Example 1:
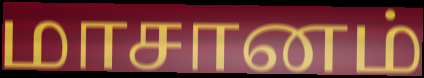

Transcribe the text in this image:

மாசானம்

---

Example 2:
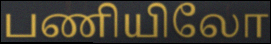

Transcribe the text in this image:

பணியிலோ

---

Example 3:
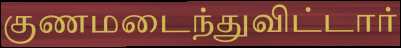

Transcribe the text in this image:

குணமடைந்துவிட்டார்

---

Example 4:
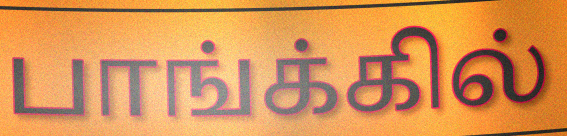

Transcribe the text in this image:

பாங்க்கில்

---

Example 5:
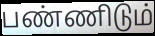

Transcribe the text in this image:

பண்ணிடும்